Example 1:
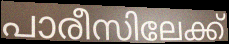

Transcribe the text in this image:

പാരീസിലേക്ക്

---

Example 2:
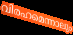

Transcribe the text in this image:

വിരഹമെന്നാലും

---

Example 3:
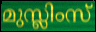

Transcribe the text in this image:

മുസ്ലിംസ്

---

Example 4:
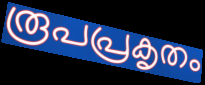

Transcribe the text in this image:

രൂപപ്രകൃതം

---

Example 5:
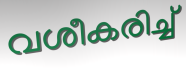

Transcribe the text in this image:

വശീകരിച്ച്